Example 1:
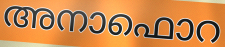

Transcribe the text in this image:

അനാഫൊറ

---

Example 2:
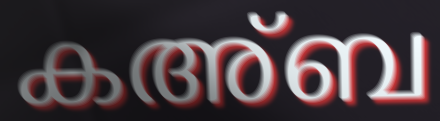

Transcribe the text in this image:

കഅ്ബ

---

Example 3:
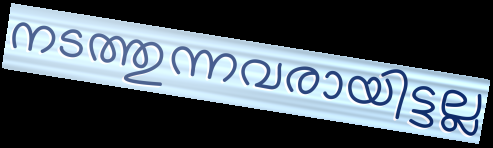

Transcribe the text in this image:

നടത്തുന്നവരായിട്ടല്ല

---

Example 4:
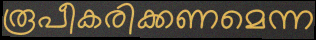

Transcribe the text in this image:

രൂപീകരിക്കണമെന്ന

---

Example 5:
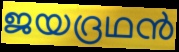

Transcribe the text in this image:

ജയദ്രഥൻ